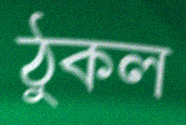
ঠুকল